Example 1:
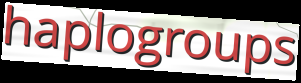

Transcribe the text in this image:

haplogroups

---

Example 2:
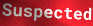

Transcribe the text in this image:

Suspected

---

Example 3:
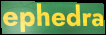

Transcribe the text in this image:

ephedra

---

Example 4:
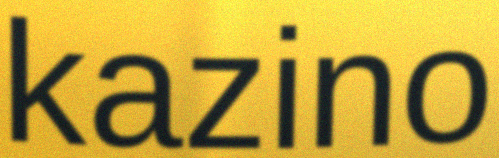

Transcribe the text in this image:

kazino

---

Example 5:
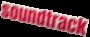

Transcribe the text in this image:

soundtrack